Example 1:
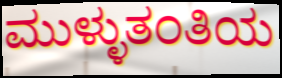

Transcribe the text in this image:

ಮುಳ್ಳುತಂತಿಯ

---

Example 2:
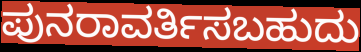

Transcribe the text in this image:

ಪುನರಾವರ್ತಿಸಬಹುದು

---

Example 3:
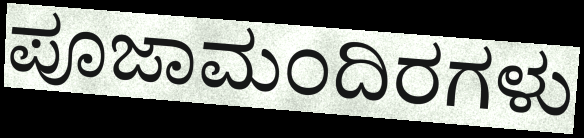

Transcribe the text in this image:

ಪೂಜಾಮಂದಿರಗಳು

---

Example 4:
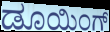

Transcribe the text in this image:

ಡೂಯಿಂಗ್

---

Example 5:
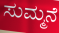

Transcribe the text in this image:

ಸುಮ್ಮನೆ